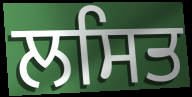
ਲਸਿਤ